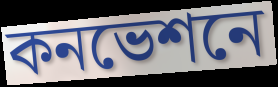
কনভেশনে